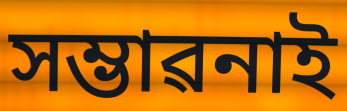
সম্ভাৱনাই